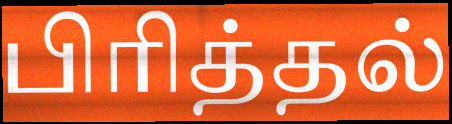
பிரித்தல்